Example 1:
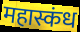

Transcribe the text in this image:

महास्कंध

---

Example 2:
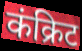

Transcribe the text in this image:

कंक्रिट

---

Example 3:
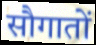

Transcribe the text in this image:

सौगातों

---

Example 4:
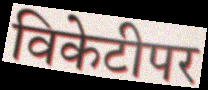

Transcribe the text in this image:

विकेटीपर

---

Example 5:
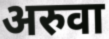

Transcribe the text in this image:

अरुवा